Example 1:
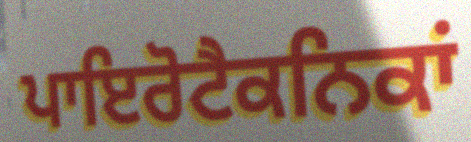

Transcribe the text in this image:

ਪਾਇਰੋਟੈਕਨਿਕਾਂ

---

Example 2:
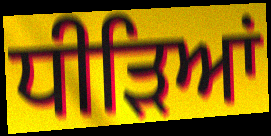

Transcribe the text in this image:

ਧੀੜਿਆਂ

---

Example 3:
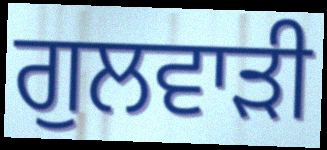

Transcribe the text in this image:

ਗੁਲਵਾੜੀ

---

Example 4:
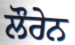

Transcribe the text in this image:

ਲੌਰੇਨ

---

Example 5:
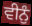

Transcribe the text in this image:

ਵੀਨੁੰ